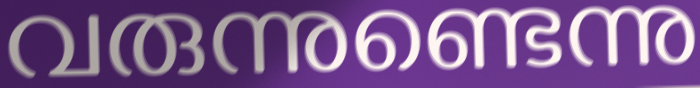
വരുന്നുണ്ടെന്നു